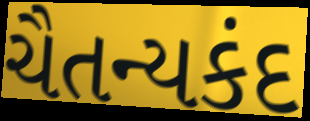
ચૈતન્યકંદ